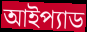
আইপ্যাড